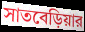
সাতবেড়িয়ার